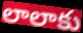
లాలాకు